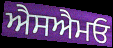
ਐਸਐਮਓ